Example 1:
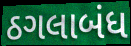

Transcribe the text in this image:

ઠગલાબંધ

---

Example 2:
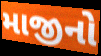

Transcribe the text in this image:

માજીનો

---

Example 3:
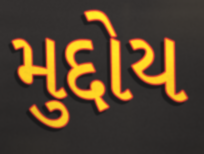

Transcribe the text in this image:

મુદ્દોય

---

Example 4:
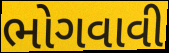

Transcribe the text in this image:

ભોગવાવી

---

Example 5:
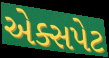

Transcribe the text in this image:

એક્સપેટ